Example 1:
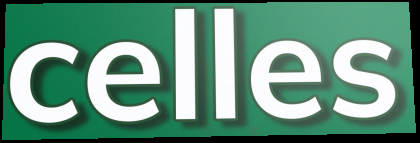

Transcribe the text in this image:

celles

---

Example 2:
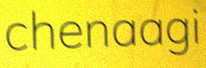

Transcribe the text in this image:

chenaagi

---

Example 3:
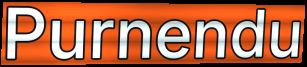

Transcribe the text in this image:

Purnendu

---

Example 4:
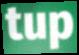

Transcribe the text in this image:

tup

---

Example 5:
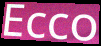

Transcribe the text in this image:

Ecco